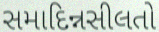
સમાદિન્નસીલતો